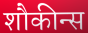
शौकीन्स